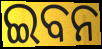
ଇବନ